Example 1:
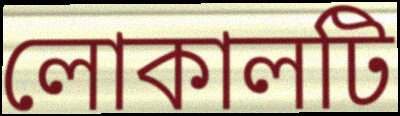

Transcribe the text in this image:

লোকালটি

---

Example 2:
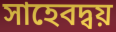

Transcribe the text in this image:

সাহেবদ্বয়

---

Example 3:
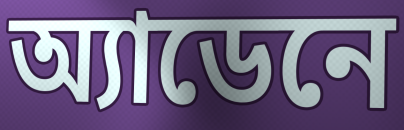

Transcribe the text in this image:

অ্যাডেনে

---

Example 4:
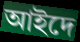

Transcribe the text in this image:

আইদে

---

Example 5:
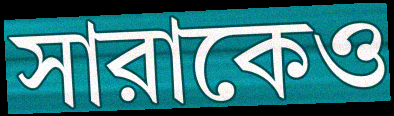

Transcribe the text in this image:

সারাকেও